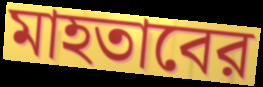
মাহতাবের